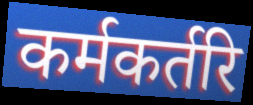
कर्मकर्तरि